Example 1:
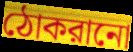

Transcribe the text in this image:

ঠোকরানো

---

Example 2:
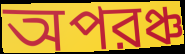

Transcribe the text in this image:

অপরঞ্চ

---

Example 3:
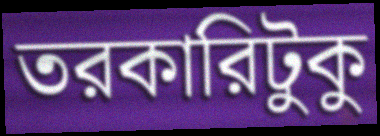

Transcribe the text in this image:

তরকারিটুকু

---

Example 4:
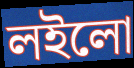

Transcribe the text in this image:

লইলো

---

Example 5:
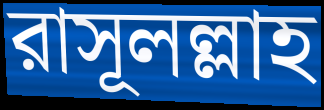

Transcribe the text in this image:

রাসূলল্লাহ